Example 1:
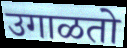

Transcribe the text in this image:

उगाळतो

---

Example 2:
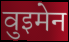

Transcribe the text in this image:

वुइमेन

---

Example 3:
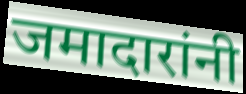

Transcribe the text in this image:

जमादारांनी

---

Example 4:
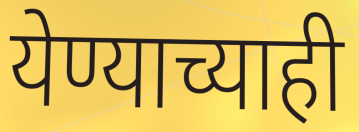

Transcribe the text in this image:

येण्याच्याही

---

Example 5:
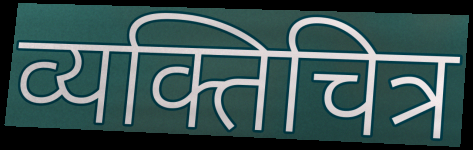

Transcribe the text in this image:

व्यक्तिचित्र